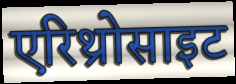
एरिथ्रोसाइट